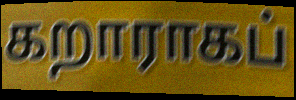
கறாராகப்